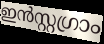
ഇൻസ്റ്റഗ്രാം